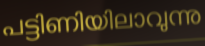
പട്ടിണിയിലാവുന്നു